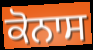
ਕੋਨਾਸ